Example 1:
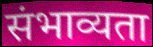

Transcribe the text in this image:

संभाव्यता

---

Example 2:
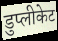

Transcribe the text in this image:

डुप्‍लीकेट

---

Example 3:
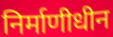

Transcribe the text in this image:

निर्माणीधीन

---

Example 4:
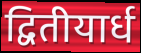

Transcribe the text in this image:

द्वितीयार्ध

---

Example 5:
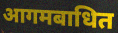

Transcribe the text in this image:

आगमबाधित